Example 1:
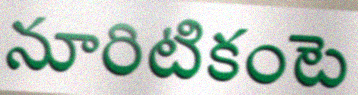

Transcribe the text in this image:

నూరిటికంటె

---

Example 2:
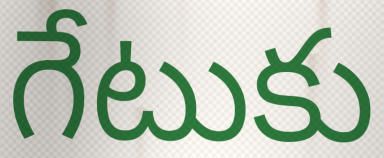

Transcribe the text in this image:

గేటుకు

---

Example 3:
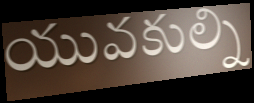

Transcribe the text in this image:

యువకుల్ని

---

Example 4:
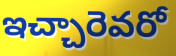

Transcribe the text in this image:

ఇచ్చారెవరో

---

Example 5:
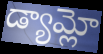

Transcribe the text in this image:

డ్యామ్లో